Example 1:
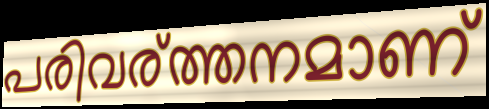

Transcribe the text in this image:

പരിവര്ത്തനമാണ്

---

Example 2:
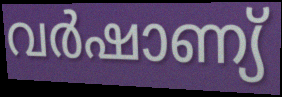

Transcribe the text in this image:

വർഷാണ്യ്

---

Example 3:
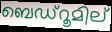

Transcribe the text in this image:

ബെഡ്റൂമില്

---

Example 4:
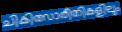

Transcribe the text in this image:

ചികിത്സാരീതികളിലും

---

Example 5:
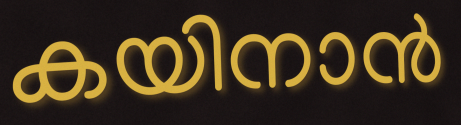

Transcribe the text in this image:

കയിനാൻ